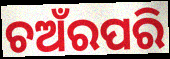
ଚଅଁରପରି